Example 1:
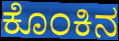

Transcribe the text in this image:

ಕೊಂಕಿನ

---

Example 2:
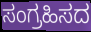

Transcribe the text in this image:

ಸಂಗ್ರಹಿಸದ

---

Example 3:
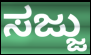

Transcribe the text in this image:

ಸಜ್ಜು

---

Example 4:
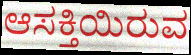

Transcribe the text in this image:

ಆಸಕ್ತಿಯಿರುವ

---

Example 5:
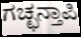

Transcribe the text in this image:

ಗಚ್ಛನ್ತಾಪಿ